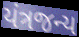
યંત્રજન્ય